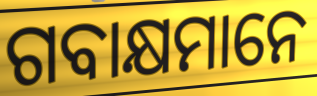
ଗବାକ୍ଷମାନେ